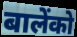
बालेंको